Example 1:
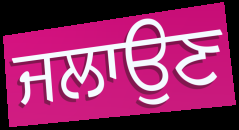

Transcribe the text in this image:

ਜਲਾਉਣ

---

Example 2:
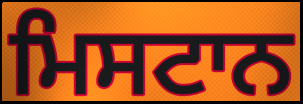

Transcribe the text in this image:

ਮਿਸਟਾਨ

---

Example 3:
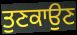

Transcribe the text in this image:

ਤੁਣਕਾਉਣ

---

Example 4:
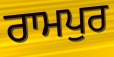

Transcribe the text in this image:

ਰਾਮਪੁਰ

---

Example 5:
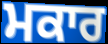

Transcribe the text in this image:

ਮਕਾਰ